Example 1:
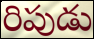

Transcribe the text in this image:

రిపుడు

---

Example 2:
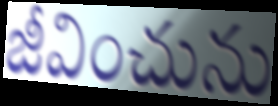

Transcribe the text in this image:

జీవించును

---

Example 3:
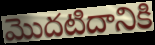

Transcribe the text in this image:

మొదటిదానికి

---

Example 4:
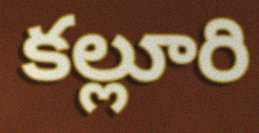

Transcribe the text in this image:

కల్లూరి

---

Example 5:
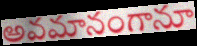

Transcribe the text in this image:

అవమానంగానూ